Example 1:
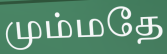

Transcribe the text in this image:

மும்மதே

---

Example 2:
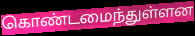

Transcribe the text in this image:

கொண்டமைந்துள்ளன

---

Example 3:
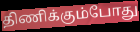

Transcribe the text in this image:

திணிக்கும்போது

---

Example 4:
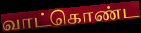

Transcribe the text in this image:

வாட்கொண்ட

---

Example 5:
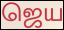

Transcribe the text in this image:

ஜெய